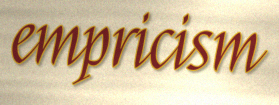
empricism